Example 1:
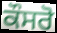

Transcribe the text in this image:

ਕੌਸਰੋ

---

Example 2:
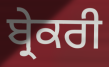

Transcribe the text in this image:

ਬ੍ਰੇਕਰੀ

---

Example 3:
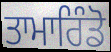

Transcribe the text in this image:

ਤਾਮਾਰਿੰਡੋ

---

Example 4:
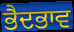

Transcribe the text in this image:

ਭੈਦਭਾਵ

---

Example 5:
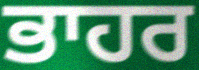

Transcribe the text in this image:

ਭਾਹਰ